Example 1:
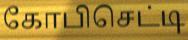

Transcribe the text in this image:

கோபிசெட்டி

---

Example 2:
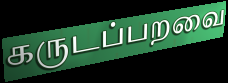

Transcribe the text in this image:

கருடப்பறவை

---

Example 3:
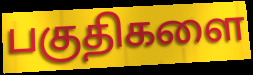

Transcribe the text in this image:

பகுதிகளை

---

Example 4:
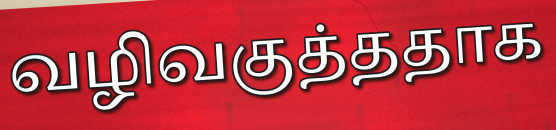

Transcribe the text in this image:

வழிவகுத்ததாக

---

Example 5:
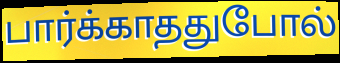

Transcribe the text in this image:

பார்க்காததுபோல்